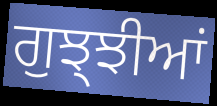
ਗੁਝ੍ਝੀਆਂ